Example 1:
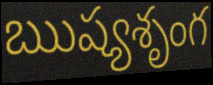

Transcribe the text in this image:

ఋష్యశృంగ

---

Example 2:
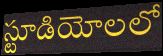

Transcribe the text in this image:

స్టూడియోలలో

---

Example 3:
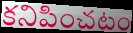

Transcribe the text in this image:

కనిపించటం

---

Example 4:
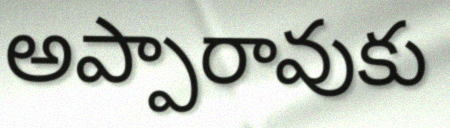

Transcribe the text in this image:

అప్పారావుకు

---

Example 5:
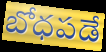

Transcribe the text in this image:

బోధపడే